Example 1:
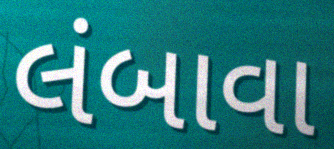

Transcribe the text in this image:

લંબાવા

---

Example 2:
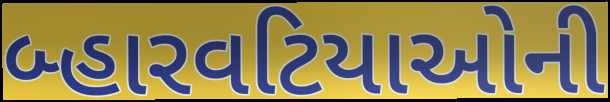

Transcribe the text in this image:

બ્હારવટિયાઓની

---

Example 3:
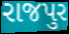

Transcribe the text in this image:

રાજપુર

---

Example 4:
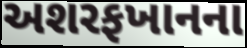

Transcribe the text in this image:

અશરફખાનના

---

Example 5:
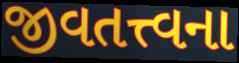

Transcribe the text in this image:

જીવતત્ત્વના